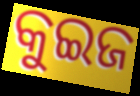
କୁଇଜ